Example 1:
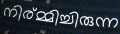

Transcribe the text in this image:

നിര്മ്മിച്ചിരുന്ന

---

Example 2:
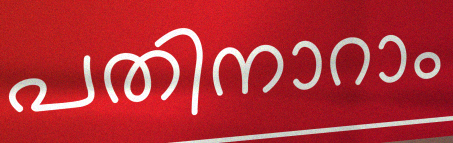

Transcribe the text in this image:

പതിനാറാം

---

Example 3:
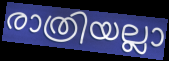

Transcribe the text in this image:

രാത്രിയല്ലാ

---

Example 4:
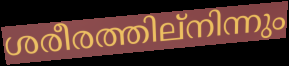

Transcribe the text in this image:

ശരീരത്തില്നിന്നും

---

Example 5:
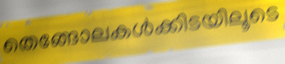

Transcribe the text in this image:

തെങ്ങോലകൾക്കിടയിലൂടെ